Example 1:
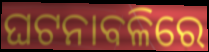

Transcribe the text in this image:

ଘଟନାବଳିରେ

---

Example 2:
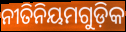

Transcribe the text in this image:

ନୀତିନିୟମଗୁଡ଼ିକ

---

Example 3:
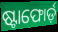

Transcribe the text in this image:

ଷ୍ଟାଫୋର୍ଡ଼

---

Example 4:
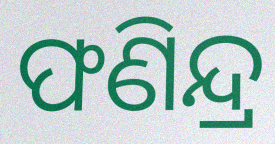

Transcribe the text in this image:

ଫଣିନ୍ଦ୍ର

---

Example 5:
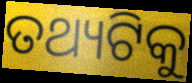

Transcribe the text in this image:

ତଥ୍ୟଟିକୁ